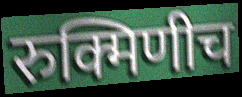
रुक्मिणीच